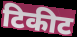
टिकीट